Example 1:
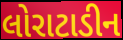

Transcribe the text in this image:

લોરાટાડીન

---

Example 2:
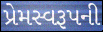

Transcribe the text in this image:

પ્રેમસ્વરૂપની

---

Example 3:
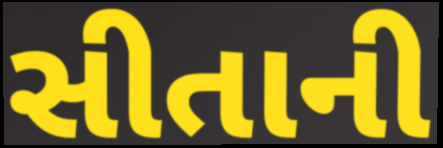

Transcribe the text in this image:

સીતાની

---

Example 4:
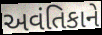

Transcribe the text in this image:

અવંતિકાને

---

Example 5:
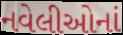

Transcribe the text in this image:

નવેલીઓનાં